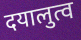
दयालुत्व